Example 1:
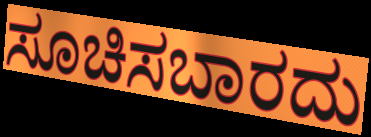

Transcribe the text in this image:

ಸೂಚಿಸಬಾರದು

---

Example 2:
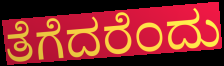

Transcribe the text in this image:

ತೆಗೆದರೆಂದು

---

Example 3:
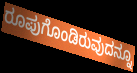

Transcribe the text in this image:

ರೂಪುಗೊಂಡಿರುವುದನ್ನೂ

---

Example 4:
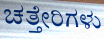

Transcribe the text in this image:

ಚತ್ತೇರಿಗಳು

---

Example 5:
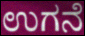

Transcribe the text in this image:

ಉಗನೆ